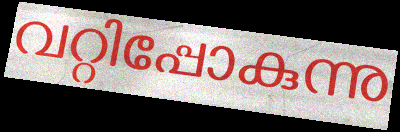
വറ്റിപ്പോകുന്നു